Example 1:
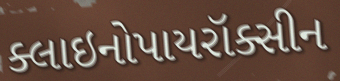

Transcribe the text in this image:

ક્લાઇનોપાયરૉક્સીન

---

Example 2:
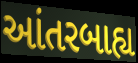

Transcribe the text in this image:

આંતરબાહ્ય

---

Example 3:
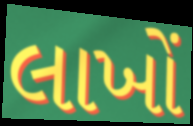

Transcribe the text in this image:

લાખોં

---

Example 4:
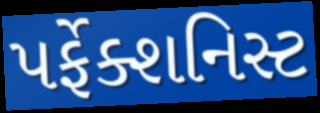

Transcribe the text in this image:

પર્ફેક્શનિસ્ટ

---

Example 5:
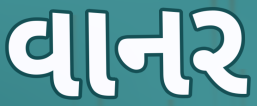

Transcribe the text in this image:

વાનર